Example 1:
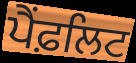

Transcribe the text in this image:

ਪੈਂਫ਼ਲਿਟ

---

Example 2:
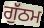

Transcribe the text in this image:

ਗੁੱਠਮ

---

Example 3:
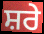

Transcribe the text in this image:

ਸ਼ਰੇ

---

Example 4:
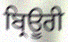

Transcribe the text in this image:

ਬ੍ਰਿਊਰੀ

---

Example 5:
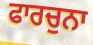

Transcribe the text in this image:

ਫਾਰਚੁਨਾ